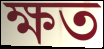
ক্ষত